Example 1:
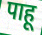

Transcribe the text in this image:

पाहू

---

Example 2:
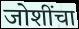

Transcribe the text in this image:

जोशींचा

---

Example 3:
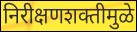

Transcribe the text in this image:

निरीक्षणशक्तीमुळे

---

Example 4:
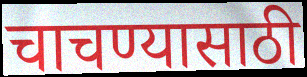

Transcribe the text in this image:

चाचण्यासाठी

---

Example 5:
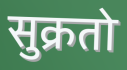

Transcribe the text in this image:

सुक्रतो